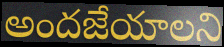
అందజేయాలని